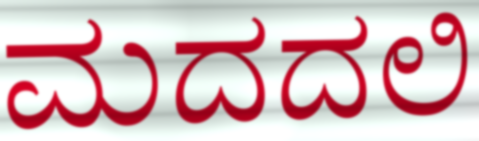
ಮದದಲಿ